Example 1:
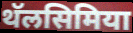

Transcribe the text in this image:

थॅलसिमिया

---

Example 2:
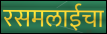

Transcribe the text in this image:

रसमलाईचा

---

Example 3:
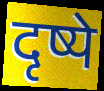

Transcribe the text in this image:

दृष्ये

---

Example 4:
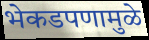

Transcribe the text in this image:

भेकडपणामुळे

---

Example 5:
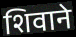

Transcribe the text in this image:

शिवाने